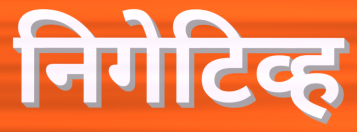
निगेटिव्ह